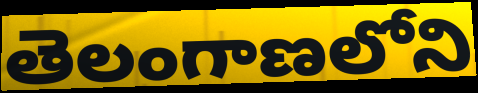
తెలంగాణలోని